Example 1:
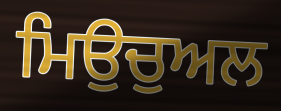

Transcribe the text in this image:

ਮਿਉਚੁਅਲ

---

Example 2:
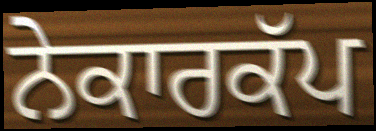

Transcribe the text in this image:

ਨੇਕਾਰਕੱਪ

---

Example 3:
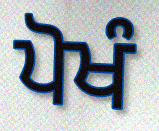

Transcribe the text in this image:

ਪੋਖੰ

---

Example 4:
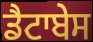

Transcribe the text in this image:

ਡੈਟਾਬੇਸ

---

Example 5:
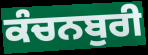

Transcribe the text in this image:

ਕੰਚਨਬੁਰੀ